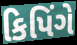
કિપિંગે